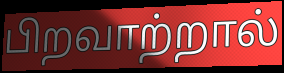
பிறவாற்றால்